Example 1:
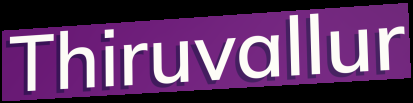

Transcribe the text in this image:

Thiruvallur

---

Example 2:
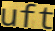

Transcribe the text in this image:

uft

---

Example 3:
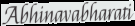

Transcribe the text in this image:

Abhinavabharati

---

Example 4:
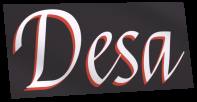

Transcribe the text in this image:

Desa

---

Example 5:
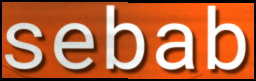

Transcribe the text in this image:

sebab